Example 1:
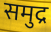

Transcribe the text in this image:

समुद्र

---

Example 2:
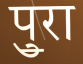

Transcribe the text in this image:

पु॒रा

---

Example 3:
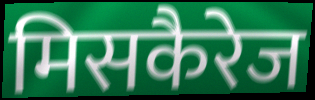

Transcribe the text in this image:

मिसकैरेज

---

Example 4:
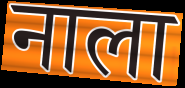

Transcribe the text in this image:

नाला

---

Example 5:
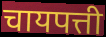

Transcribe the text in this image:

चायपत्ती